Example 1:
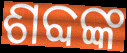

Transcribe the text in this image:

ଶବ୍ଦଙ୍କ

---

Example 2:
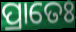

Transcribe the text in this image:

ପ୍ରାତେଃ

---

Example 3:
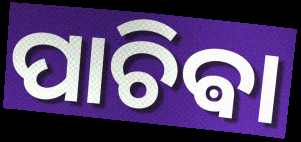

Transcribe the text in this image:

ପାଚିଵା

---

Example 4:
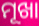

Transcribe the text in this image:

ମୂଖା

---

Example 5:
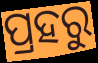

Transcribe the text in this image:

ପ୍ରହରୁ